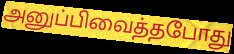
அனுப்பிவைத்தபோது